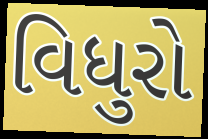
વિધુરો